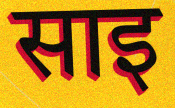
साइ